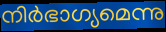
നിർഭാഗ്യമെന്നു